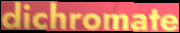
dichromate